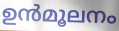
ഉൻമൂലനം